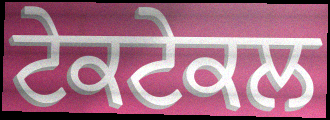
ਟੇਕਟੇਕਲ